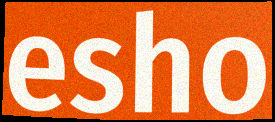
esho